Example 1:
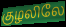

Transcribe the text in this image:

குழலிலே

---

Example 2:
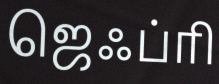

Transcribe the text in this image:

ஜெஃப்ரி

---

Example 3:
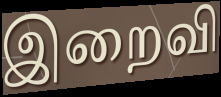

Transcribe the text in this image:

இறைவி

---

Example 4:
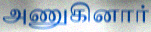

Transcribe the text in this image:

அணுகினார்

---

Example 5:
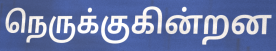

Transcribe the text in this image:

நெருக்குகின்றன